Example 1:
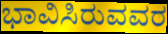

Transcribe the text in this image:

ಭಾವಿಸಿರುವವರ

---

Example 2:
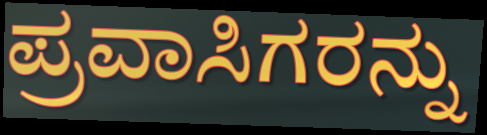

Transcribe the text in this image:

ಪ್ರವಾಸಿಗರನ್ನು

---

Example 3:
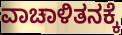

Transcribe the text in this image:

ವಾಚಾಳಿತನಕ್ಕೆ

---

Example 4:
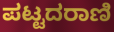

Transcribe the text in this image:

ಪಟ್ಟದರಾಣಿ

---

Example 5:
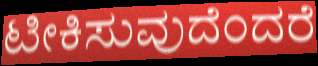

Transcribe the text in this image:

ಟೀಕಿಸುವುದೆಂದರೆ